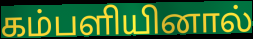
கம்பளியினால்